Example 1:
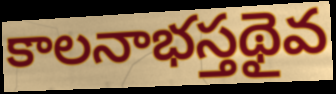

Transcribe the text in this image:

కాలనాభస్తథైవ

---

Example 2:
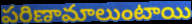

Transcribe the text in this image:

పరిణామాలుంటాయి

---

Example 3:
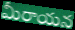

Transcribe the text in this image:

మీరాయన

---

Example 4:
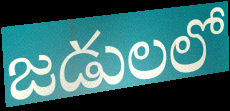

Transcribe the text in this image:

జడులలో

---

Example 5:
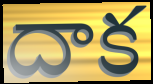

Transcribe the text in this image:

దాక